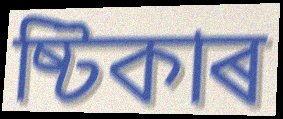
ষ্টিকাৰ